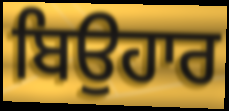
ਬਿਉਹਾਰ